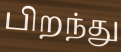
பிறந்து